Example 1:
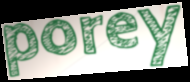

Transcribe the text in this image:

porey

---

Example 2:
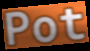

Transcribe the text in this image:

Pot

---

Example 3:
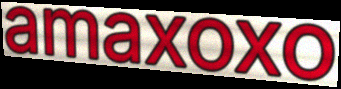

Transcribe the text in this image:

amaxoxo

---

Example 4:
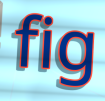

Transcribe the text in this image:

fig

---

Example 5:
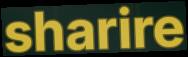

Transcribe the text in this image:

sharire